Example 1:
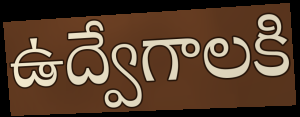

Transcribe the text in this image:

ఉద్వేగాలకి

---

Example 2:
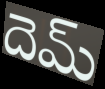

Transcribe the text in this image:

దెమ్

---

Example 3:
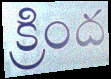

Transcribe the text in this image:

క్రింద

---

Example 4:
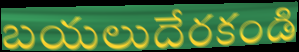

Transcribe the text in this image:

బయలుదేరకండి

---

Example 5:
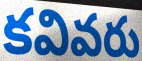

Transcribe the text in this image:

కవివరు